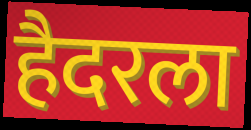
हैदरला